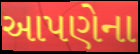
આપણેના